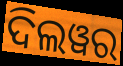
ଦିଲୱର